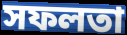
সফলতা